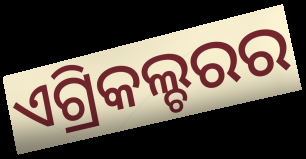
ଏଗ୍ରିକଲ୍ଚରର